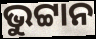
ଭୁଟ୍ଟାନ